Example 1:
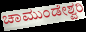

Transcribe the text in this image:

ಚಾಮುಂಡೇಶ್ವರಿ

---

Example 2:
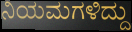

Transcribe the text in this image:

ನಿಯಮಗಳಿದ್ದು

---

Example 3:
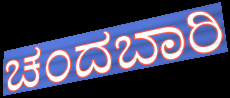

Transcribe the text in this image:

ಚಂದಬಾರಿ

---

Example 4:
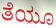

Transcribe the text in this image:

ತೆಯೂ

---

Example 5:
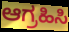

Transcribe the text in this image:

ಆಗ್ರಹಿಸಿ